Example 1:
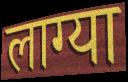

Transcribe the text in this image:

लाग्या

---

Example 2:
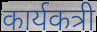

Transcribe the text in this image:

कार्यकत्री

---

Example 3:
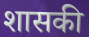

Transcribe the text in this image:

शासकी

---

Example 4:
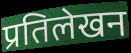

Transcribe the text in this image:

प्रतिलेखन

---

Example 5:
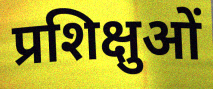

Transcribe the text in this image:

प्रशिक्षुओं